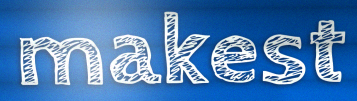
makest